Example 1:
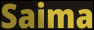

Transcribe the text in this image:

Saima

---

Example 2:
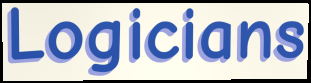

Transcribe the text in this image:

Logicians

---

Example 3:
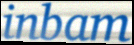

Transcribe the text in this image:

inbam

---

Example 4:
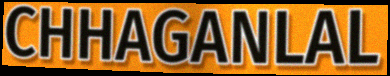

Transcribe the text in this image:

CHHAGANLAL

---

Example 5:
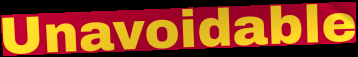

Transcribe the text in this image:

Unavoidable